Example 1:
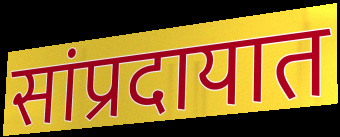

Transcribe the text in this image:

सांप्रदायात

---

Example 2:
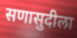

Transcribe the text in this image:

सणासुदीला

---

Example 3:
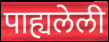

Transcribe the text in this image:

पाह्यलेली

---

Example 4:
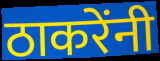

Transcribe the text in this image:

ठाकरेंनी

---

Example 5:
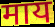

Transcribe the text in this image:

माय